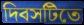
দিবসটিতে